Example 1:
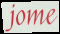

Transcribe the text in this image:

jome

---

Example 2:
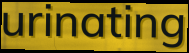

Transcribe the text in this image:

urinating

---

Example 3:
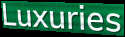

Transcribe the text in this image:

Luxuries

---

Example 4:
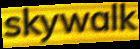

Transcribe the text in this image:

skywalk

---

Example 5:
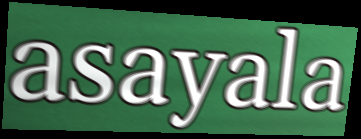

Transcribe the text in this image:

asayala